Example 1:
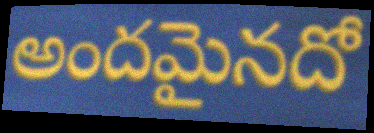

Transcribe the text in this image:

అందమైనదో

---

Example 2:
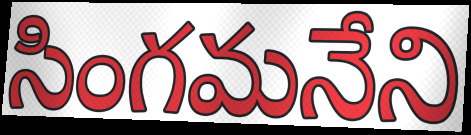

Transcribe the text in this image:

సింగమనేని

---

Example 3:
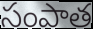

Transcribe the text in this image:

సంపాత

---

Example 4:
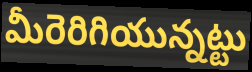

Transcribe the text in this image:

మీరెరిగియున్నట్టు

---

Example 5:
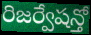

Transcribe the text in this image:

రిజర్వేషన్తో